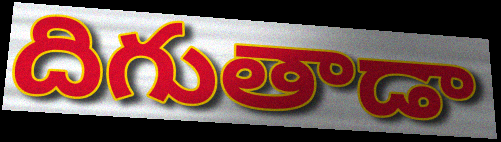
దిగుతాడా